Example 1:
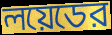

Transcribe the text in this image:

লয়েডের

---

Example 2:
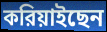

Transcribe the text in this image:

করিয়াইছেন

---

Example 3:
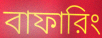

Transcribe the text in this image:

বাফারিং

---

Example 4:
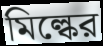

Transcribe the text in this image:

মিল্কের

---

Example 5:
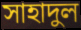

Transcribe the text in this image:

সাহাদুল